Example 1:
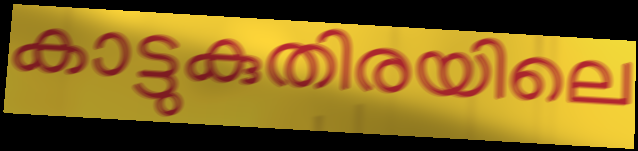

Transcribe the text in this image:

കാട്ടുകുതിരയിലെ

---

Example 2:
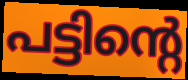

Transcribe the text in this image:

പട്ടിന്റെ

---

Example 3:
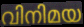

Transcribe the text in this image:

വിനിമയ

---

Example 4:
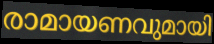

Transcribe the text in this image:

രാമായണവുമായി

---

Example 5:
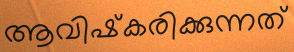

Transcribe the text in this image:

ആവിഷ്‌കരിക്കുന്നത്